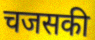
चजसकी